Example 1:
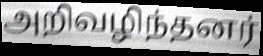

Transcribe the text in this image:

அறிவழிந்தனர்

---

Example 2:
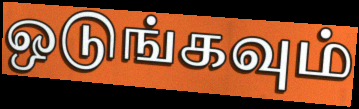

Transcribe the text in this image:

ஒடுங்கவும்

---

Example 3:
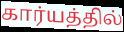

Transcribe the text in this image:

கார்யத்தில்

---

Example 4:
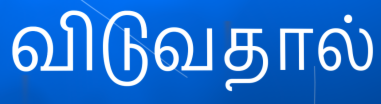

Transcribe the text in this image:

விடுவதால்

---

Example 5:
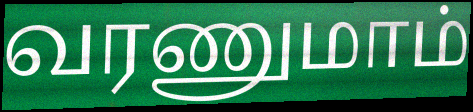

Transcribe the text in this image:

வரணுமாம்